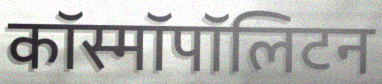
कॉस्मॉपॉलिटन